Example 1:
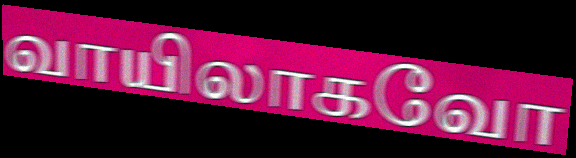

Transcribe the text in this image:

வாயிலாகவோ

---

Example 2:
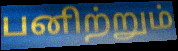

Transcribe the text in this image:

பனிற்றும்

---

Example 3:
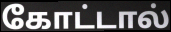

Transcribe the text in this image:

கோட்டால்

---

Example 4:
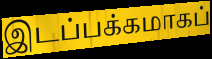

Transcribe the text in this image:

இடப்பக்கமாகப்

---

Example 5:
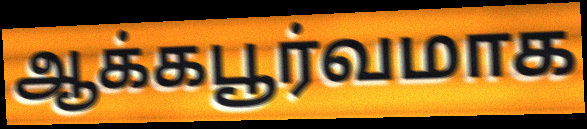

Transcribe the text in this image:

ஆக்கபூர்வமாக